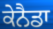
ਕੇਨੈਡਾ